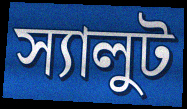
স্যালুট